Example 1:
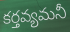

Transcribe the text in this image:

కర్తవ్యమనీ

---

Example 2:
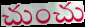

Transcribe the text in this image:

చుంచు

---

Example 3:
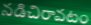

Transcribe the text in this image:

నడిచిరావటం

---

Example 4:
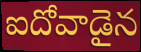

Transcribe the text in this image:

ఐదోవాడైన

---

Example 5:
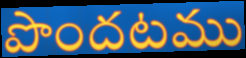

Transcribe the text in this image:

పొందటము